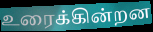
உரைக்கின்றன